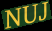
NUJ